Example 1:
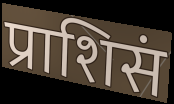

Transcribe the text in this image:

प्राशिसं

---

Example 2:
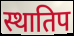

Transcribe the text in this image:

स्थातिप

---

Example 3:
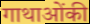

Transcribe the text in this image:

गाथाओंकी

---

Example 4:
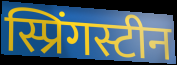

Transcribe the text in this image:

स्प्रिंगस्टीन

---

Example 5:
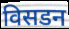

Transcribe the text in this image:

विसडन